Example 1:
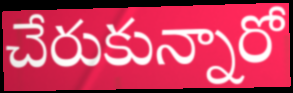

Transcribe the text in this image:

చేరుకున్నారో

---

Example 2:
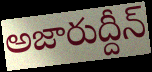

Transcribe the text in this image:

అజారుద్దీన్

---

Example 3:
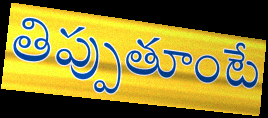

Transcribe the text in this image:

తిప్పుతూంటే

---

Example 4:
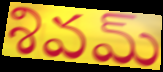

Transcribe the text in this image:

శివమ్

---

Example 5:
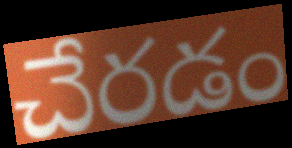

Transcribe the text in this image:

చేరడం